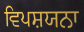
ਵਿਪਸ਼ਯਨਾ